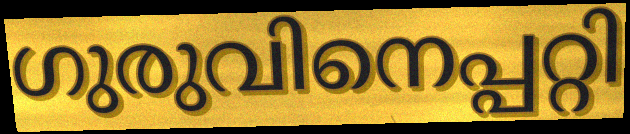
ഗുരുവിനെപ്പറ്റി